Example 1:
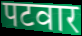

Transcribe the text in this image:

पटवार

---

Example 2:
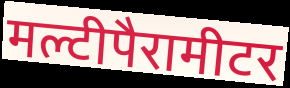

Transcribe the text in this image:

मल्टीपैरामीटर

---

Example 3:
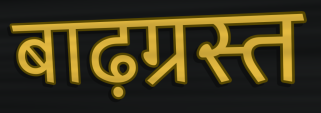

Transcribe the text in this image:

बाढ़ग्रस्त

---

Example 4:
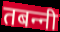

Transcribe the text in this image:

तबन्नी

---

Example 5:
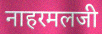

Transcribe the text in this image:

नाहरमलजी